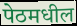
पेठमधील